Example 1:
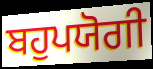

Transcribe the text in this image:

ਬਹੁਪਯੋਗੀ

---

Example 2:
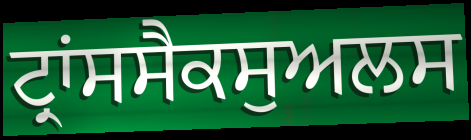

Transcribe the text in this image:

ਟ੍ਰਾਂਸਸੈਕਸੁਅਲਸ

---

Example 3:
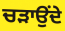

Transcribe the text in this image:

ਚੜਾਉਂਦੇ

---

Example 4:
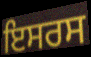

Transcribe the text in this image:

ਇਸਰਸ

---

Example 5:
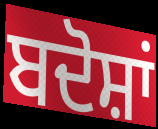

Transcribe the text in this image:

ਬਦੋਸ਼ਾਂ